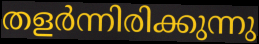
തളർന്നിരിക്കുന്നു